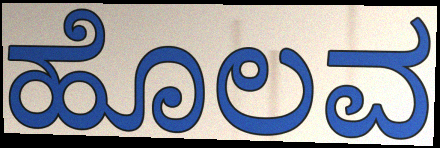
ಹೊಲವ